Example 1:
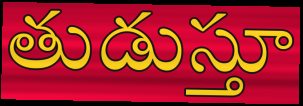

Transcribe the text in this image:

తుడుస్తూ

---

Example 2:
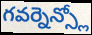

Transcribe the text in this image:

గవర్నెన్స్లో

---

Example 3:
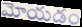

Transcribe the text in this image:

మోయడం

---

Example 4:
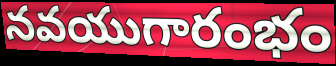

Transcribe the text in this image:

నవయుగారంభం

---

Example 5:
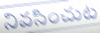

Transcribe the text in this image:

నివసించుట